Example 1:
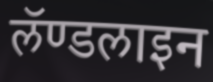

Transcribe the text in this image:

लॅण्डलाइन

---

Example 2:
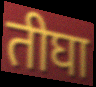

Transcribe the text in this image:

तीघा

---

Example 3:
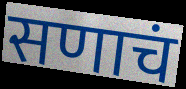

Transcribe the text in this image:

सणाचं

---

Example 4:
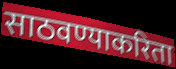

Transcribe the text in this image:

साठवण्याकरिता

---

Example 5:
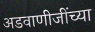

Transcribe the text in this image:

अडवाणीजींच्या